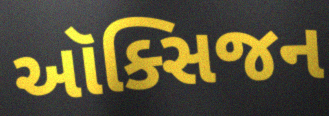
ઑક્સિજન